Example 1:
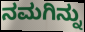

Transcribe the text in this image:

ನಮಗಿನ್ನು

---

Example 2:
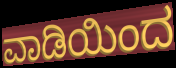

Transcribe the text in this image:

ವಾಡಿಯಿಂದ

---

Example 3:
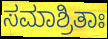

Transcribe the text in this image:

ಸಮಾಶ್ರಿತಾಃ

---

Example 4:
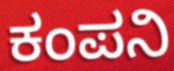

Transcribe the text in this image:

ಕಂಪನಿ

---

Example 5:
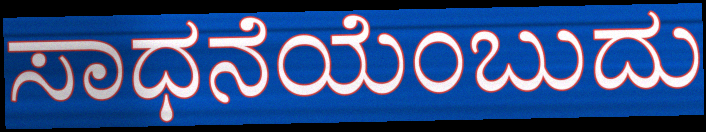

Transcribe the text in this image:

ಸಾಧನೆಯೆಂಬುದು